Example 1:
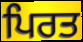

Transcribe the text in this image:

ਪਿਰਤ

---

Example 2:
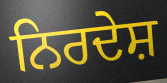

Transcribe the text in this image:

ਨਿਰਦੇਸ਼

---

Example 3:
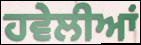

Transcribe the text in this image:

ਹਵੇਲੀਆਂ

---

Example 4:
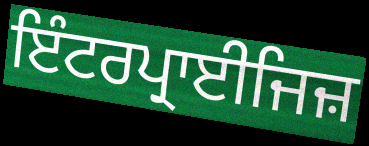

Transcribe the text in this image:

ਇੰਟਰਪ੍ਰਾਈਜਿਜ਼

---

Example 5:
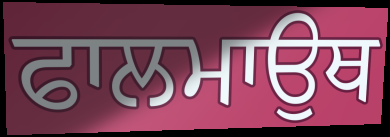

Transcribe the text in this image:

ਫਾਲਮਾਉਥ